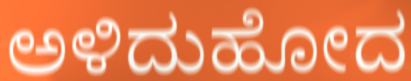
ಅಳಿದುಹೋದ